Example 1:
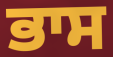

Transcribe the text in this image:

ਭਾਸ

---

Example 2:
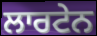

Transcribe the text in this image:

ਲਾਰਟੇਨ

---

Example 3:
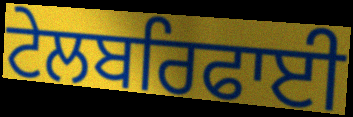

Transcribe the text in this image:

ਟੇਲਬਰਿਫਾਈ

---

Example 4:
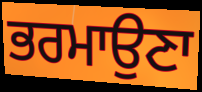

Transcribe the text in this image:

ਭਰਮਾਉਣਾ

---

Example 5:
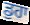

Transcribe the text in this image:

ਡੁਹਾ